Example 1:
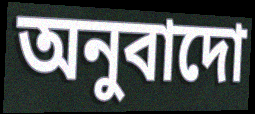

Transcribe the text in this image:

অনুবাদো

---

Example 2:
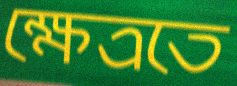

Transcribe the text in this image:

ক্ষেত্ৰতে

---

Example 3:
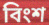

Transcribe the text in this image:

বিংশ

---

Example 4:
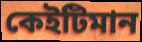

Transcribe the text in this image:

কেইটিমান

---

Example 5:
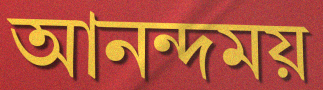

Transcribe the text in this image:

আনন্দময়